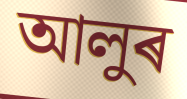
আলুৰ